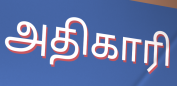
அதிகாரி